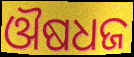
ଔଷଧଜ